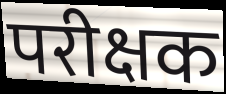
परीक्षक